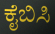
ಕೈಬಿಸಿ